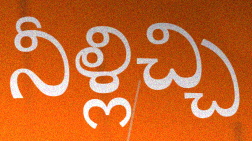
నీళ్లిచ్చి